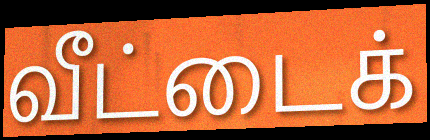
வீட்டைக்